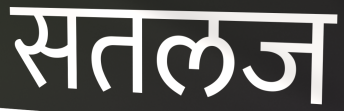
सतलज